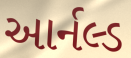
આર્નલ્ડ